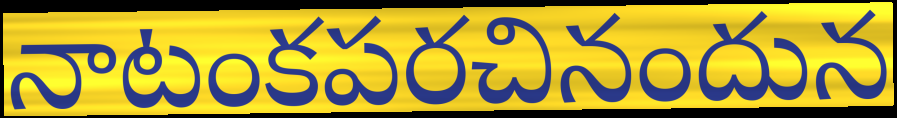
నాటంకపరచినందున